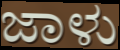
ಜಾಳು